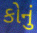
કોનું